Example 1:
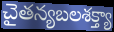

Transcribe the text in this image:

చైతన్యబలశక్త్యా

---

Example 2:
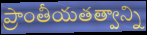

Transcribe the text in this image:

ప్రాంతీయతత్వాన్ని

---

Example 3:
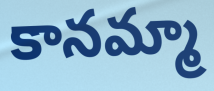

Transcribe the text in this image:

కానమ్మా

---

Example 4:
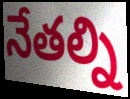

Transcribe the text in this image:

నేతల్ని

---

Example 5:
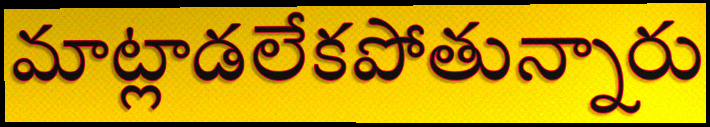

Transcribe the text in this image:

మాట్లాడలేకపోతున్నారు